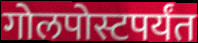
गोलपोस्टपर्यंत